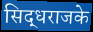
सिद्धराजके